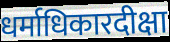
धर्माधिकारदीक्षा